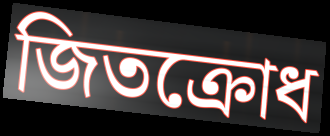
জিতক্রোধ